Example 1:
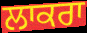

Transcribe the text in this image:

ਲਾਕਰਾ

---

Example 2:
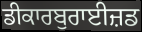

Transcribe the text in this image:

ਡੀਕਾਰਬੁਰਾਈਜ਼ਡ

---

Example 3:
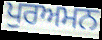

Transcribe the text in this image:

ਪੁਰਅਮਨ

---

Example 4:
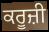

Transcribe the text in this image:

ਕਰੂਜ਼ੀ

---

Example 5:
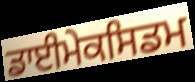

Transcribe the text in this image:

ਡਾਈਮੇਕਸਿਡਮ